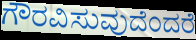
ಗೌರವಿಸುವುದೆಂದರೆ